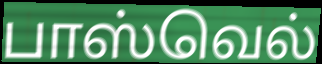
பாஸ்வெல்